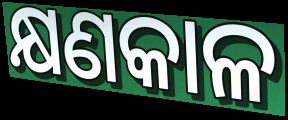
କ୍ଷଣକାଳ